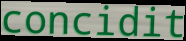
concidit